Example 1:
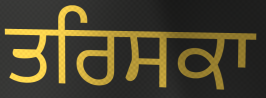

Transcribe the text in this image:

ਤਰਿਸਕਾ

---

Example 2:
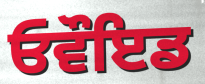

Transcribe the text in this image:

ਓਵੌਇਡ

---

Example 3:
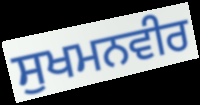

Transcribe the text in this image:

ਸੁਖਮਨਵੀਰ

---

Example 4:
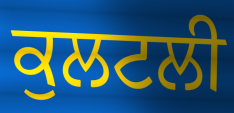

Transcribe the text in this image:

ਕੁਲਟਲੀ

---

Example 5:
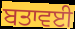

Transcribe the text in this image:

ਬਤਾਵਈ